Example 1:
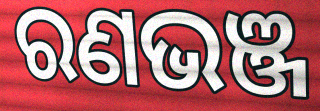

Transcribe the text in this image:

ରଣଭଞ୍ଜ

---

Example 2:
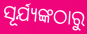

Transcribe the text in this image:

ସୂର୍ଯ୍ୟଙ୍କଠାରୁ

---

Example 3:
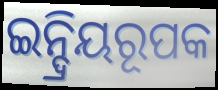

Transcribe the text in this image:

ଇନ୍ଦ୍ରିୟରୂପକ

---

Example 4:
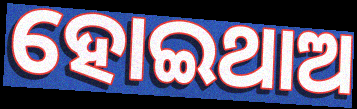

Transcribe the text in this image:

ହୋଇଥାଅ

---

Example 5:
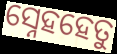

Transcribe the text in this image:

ସ୍ନେହହେତୁ